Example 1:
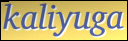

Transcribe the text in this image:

kaliyuga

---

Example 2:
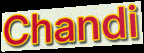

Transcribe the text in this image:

Chandi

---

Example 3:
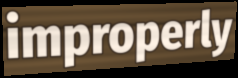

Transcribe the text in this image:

improperly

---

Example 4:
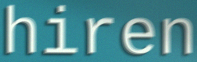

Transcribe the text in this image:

hiren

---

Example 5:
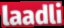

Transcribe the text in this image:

laadli